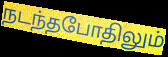
நடந்தபோதிலும்